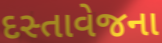
દસ્તાવેજના